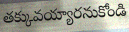
తక్కువయ్యారనుకోండి